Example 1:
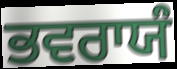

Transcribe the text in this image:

ਭਵਰਾਯੰ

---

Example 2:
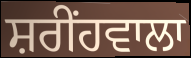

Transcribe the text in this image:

ਸ਼ਰੀਂਹਵਾਲਾ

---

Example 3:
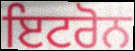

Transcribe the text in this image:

ਇਟਰੋਨ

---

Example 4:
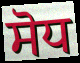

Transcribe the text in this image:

ਸੋਧ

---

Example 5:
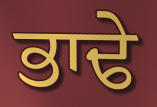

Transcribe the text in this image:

ਭਾਢੇ